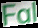
Fal